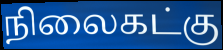
நிலைகட்கு